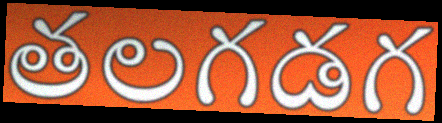
తలగడగ